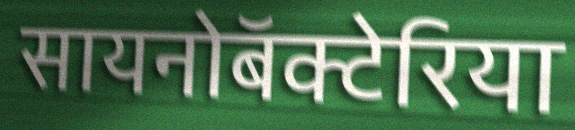
सायनोबॅक्टेरिया